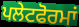
ਪਲੇਟਫੋਰਮਾਂ